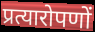
प्रत्यारोपणों